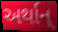
અર્થાન્